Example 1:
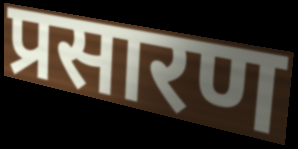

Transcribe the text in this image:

प्रसारण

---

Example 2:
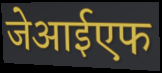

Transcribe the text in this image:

जेआईएफ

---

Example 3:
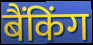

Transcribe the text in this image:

बैंकिंग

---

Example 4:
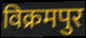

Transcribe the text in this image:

विक्रमपुर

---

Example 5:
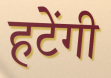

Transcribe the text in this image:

हटेंगी